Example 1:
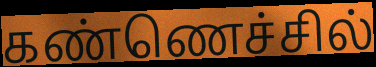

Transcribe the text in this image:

கண்ணெச்சில்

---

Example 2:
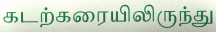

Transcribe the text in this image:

கடற்கரையிலிருந்து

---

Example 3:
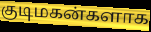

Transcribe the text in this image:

குடிமகன்களாக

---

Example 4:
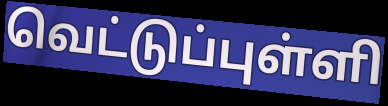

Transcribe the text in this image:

வெட்டுப்புள்ளி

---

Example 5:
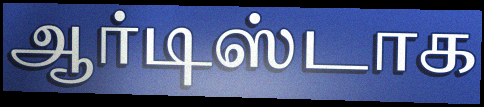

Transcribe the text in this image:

ஆர்டிஸ்டாக